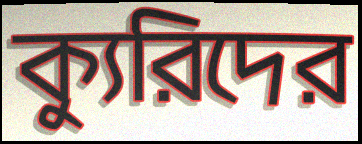
ক্যুরিদের